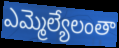
ఎమ్మెల్యేలంతా